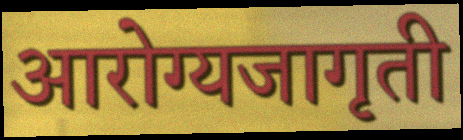
आरोग्यजागृती